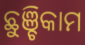
ଛୁଞ୍ଚିକାମ